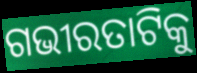
ଗଭୀରତାଟିକୁ